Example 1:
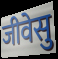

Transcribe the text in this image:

जीवेसु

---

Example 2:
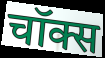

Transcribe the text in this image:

चॉक्स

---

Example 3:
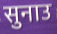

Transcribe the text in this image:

सुनाउ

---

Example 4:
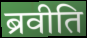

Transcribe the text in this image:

ब्रवीति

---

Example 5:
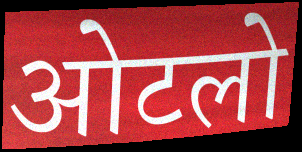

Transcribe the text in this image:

ओटलो